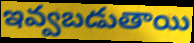
ఇవ్వబడుతాయి